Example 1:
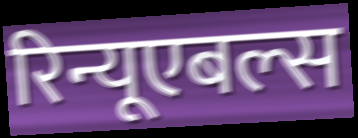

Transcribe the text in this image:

रिन्यूएबल्स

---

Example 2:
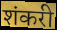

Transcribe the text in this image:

शंकरी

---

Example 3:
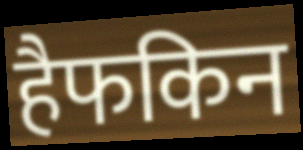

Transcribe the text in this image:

हैफकिन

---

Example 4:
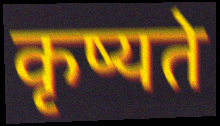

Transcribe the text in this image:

कृष्यते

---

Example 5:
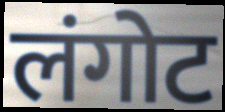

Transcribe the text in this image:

लंगोट